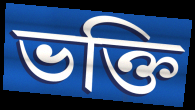
ভক্তি